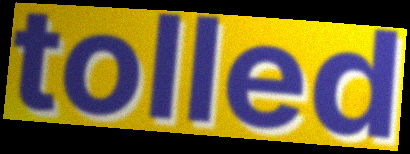
tolled